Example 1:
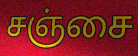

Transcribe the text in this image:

சஞ்சை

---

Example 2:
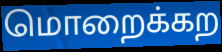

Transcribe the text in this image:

மொறைக்கற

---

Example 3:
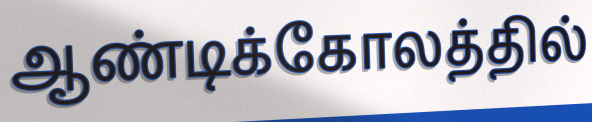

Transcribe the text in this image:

ஆண்டிக்கோலத்தில்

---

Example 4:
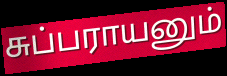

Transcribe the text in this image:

சுப்பராயனும்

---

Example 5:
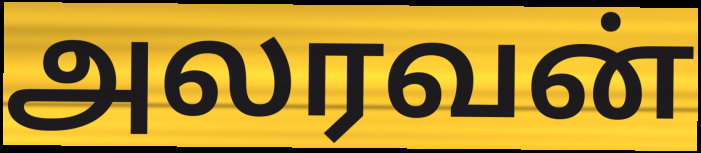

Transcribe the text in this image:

அலரவன்